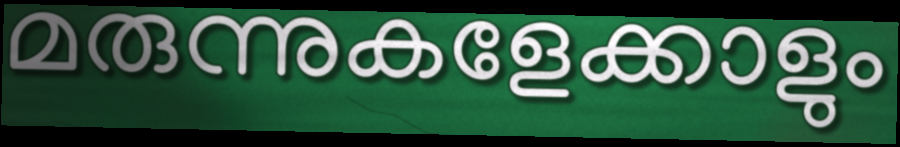
മരുന്നുകളേക്കാളും